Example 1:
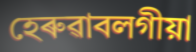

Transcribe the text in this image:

হেৰুৱাবলগীয়া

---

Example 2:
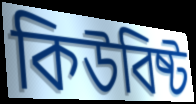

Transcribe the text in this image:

কিউবিষ্ট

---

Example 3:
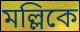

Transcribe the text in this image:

মল্লিকে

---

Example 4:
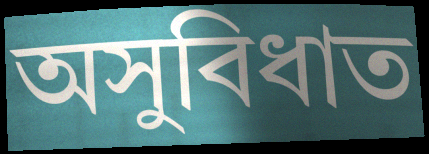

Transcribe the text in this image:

অসুবিধাত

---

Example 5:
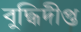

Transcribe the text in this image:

বুদ্ধিদীপ্ত